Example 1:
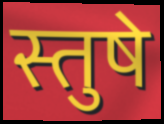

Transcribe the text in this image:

स्तुषे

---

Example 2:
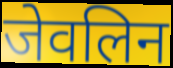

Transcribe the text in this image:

जेवलिन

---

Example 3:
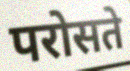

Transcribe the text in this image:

परोसते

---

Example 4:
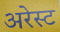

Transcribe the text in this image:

अरेस्ट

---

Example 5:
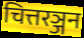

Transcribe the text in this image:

चित्तरञ्जन